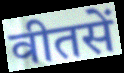
वीतसें